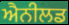
ਐਨੀਲਡ